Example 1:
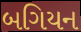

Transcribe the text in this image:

બગિયન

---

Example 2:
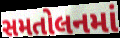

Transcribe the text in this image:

સમતોલનમાં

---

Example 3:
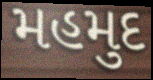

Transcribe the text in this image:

મહમુદ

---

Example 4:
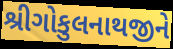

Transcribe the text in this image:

શ્રીગોકુલનાથજીને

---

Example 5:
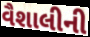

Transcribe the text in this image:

વૈશાલીની